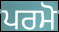
ਪਰਮੋ